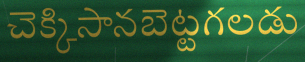
చెక్కిసానబెట్టగలడు